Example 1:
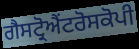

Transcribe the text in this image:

ਗੈਸਟ੍ਰੋਐਂਟਰੋਸਕੋਪੀ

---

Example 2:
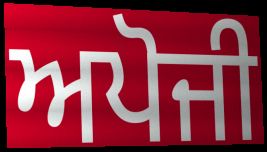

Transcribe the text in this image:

ਅਪੋਜੀ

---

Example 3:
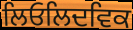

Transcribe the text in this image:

ਲਿਓਲਿਦਵਿਕ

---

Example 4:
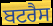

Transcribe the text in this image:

ਬਟਰੈਸ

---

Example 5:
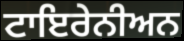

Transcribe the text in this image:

ਟਾਇਰੇਨੀਅਨ